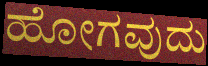
ಹೋಗವುದು